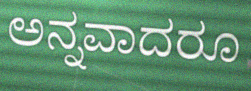
ಅನ್ನವಾದರೂ